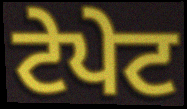
ਟੇਪੇਟ